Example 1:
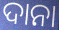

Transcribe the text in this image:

ଦାନା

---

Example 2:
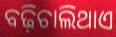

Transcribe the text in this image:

ବଢ଼ିଚାଲିଥାଏ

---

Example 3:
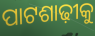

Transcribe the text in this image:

ପାଟଶାଢ଼ୀକୁ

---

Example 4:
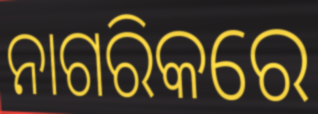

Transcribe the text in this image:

ନାଗରିକରେ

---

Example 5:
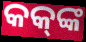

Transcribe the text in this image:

କକ୍‌ଙ୍କ